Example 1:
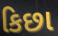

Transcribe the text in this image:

કિછા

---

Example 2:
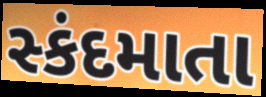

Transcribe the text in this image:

સ્કંદમાતા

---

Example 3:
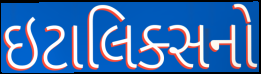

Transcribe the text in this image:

ઇટાલિક્સનો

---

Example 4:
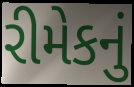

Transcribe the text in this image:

રીમેકનું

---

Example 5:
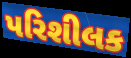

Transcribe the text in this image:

પરિશીલક